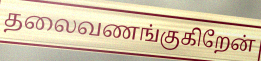
தலைவணங்குகிறேன்